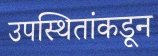
उपस्थितांकडून